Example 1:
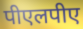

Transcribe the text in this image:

पीएलपीए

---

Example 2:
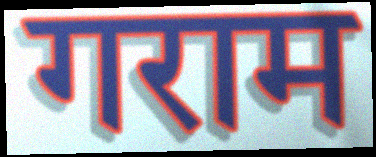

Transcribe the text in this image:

गराम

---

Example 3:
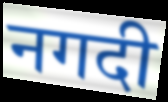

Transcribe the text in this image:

नगदी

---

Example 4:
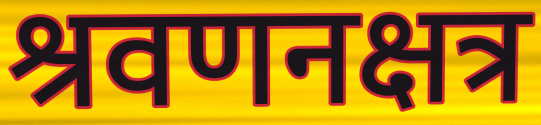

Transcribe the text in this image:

श्रवणनक्षत्र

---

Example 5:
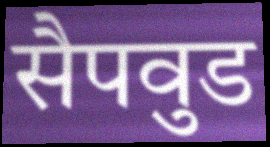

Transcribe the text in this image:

सैपवुड